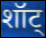
शॉट्